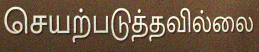
செயற்படுத்தவில்லை